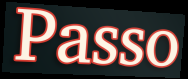
Passo